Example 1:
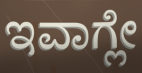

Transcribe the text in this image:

ಇವಾಗ್ಲೇ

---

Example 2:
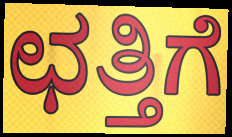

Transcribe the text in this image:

ಛತ್ತಿಗೆ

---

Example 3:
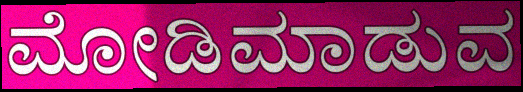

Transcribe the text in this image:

ಮೋಡಿಮಾಡುವ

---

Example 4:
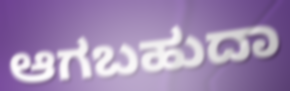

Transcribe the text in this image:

ಆಗಬಹುದಾ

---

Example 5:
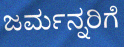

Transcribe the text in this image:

ಜರ್ಮನ್ನರಿಗೆ